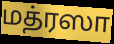
மத்ரஸா